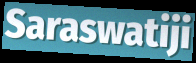
Saraswatiji